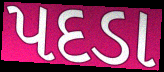
પદડા